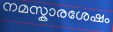
നമസ്കാരശേഷം